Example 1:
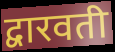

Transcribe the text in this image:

द्वारवती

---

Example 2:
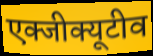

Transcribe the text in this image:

एक्जीक्यूटीव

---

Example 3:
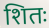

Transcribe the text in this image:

शितः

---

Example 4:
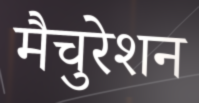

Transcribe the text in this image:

मैचुरेशन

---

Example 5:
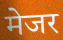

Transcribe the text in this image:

मेजर